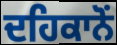
ਦਹਿਕਾਨੋਂ